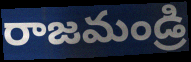
రాజమండ్రి